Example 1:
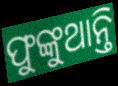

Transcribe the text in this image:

ଫୁଙ୍କୁଥାନ୍ତି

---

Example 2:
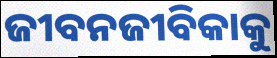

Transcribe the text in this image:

ଜୀବନଜୀବିକାକୁ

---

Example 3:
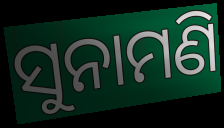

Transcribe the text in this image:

ସୁନାମଣି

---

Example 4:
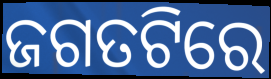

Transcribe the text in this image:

ଜଗତଟିରେ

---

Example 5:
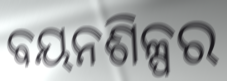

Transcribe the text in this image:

ବୟନଶିଳ୍ପର